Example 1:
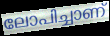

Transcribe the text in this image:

ലോപിച്ചാണ്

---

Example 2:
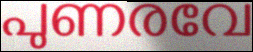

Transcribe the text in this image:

പുണരവേ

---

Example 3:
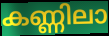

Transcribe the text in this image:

കണ്ണിലാ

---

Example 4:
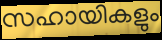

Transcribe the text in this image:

സഹായികളും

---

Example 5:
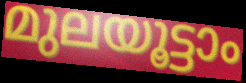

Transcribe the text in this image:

മുലയൂട്ടാം